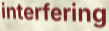
interfering